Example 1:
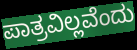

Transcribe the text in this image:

ಪಾತ್ರವಿಲ್ಲವೆಂದು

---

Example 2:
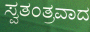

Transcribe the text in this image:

ಸ್ವತಂತ್ರವಾದ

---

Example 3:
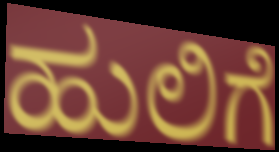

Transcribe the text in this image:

ಹುಲಿಗೆ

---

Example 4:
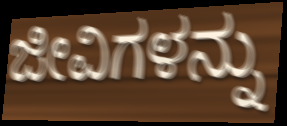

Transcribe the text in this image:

ಜೀವಿಗಳನ್ನು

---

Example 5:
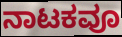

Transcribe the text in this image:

ನಾಟಕವೂ